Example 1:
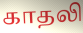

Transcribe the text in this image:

காதலி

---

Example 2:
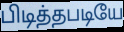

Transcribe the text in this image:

பிடித்தபடியே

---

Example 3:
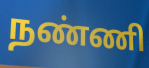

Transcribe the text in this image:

நண்ணி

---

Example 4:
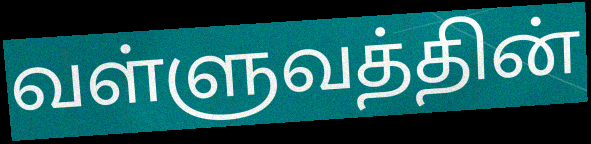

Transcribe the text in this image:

வள்ளுவத்தின்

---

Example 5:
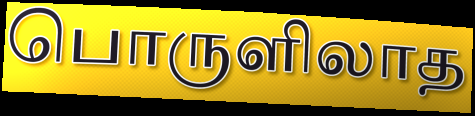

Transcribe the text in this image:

பொருளிலாத